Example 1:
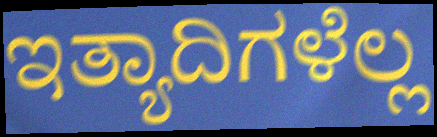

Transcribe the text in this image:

ಇತ್ಯಾದಿಗಳೆಲ್ಲ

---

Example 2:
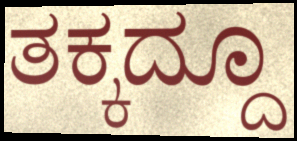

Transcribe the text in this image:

ತಕ್ಕದ್ದೂ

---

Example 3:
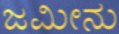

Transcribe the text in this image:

ಜಮೀನು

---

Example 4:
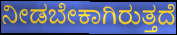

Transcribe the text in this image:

ನೀಡಬೇಕಾಗಿರುತ್ತದೆ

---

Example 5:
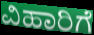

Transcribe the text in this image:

ವಿಹಾರಿಗೆ